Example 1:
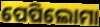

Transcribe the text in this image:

ପେପିଲୋମା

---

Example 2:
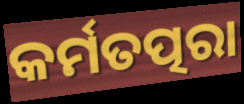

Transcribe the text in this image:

କର୍ମତତ୍ପରା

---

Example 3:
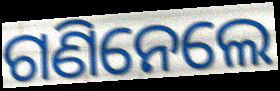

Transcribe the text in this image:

ଗଣିନେଲେ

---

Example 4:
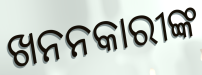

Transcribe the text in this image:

ଖନନକାରୀଙ୍କ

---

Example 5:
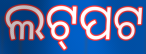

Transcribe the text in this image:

ଲଟ୍‌ପଟ